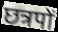
छत्रपों